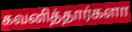
கவனித்தார்களா